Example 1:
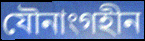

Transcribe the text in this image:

যৌনাংগহীন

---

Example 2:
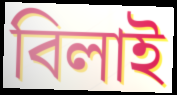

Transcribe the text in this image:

বিলাই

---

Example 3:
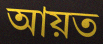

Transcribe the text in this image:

আয়ত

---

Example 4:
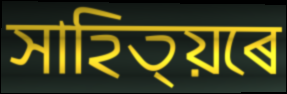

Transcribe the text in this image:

সাহিত্য়ৰে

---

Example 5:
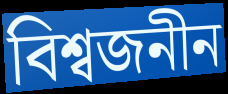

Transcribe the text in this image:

বিশ্বজনীন